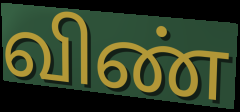
விண்